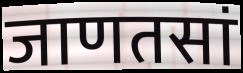
जाणतसां